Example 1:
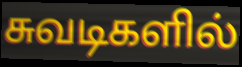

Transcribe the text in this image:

சுவடிகளில்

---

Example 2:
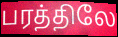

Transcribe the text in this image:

பரத்திலே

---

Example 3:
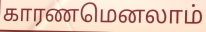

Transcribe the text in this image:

காரணமெனலாம்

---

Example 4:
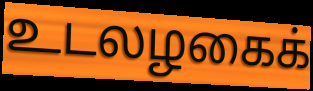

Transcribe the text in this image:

உடலழகைக்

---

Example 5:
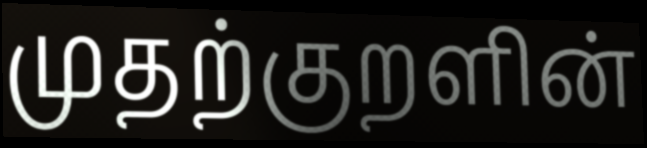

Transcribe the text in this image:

முதற்குறளின்